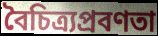
বৈচিত্র্যপ্রবণতা